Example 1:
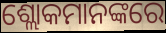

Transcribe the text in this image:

ଶ୍ଲୋକମାନଙ୍କରେ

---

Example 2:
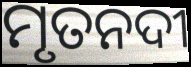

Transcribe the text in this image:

ମୃତନଦୀ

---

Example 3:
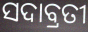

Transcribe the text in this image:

ସଦାବ୍ରତୀ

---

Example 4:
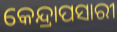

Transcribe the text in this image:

କେନ୍ଦ୍ରାପସାରୀ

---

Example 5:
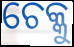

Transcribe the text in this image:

ଚେକ୍କୁ